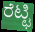
ರೆಟ್ಟಿ